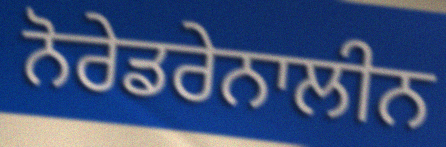
ਨੋਰੇਡਰੇਨਾਲੀਨ